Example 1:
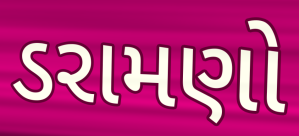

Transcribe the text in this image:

ડરામણો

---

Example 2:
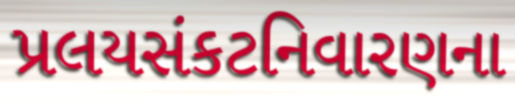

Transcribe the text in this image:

પ્રલયસંકટનિવારણના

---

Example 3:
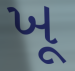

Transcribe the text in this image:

ખૂ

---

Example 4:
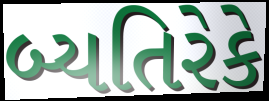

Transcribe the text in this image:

બ્યતિરેકે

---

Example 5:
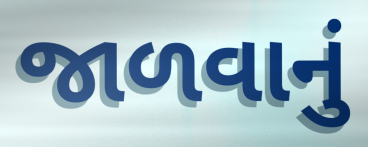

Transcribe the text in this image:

જાળવાનું